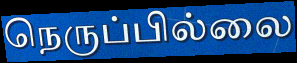
நெருப்பில்லை